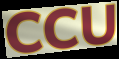
CCU